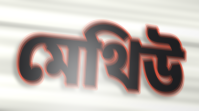
মেথিউ